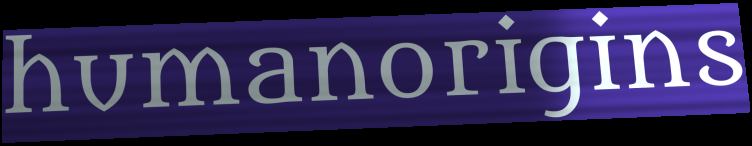
humanorigins